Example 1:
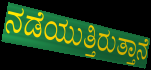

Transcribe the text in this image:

ನಡೆಯುತ್ತಿರುತ್ತಾನೆ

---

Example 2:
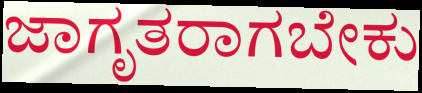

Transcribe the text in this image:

ಜಾಗೃತರಾಗಬೇಕು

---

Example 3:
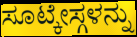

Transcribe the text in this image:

ಸೂಟ್ಕೇಸ್ಗಳನ್ನು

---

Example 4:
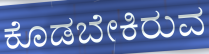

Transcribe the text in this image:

ಕೊಡಬೇಕಿರುವ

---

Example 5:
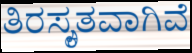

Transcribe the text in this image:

ತಿರಸ್ಕೃತವಾಗಿವೆ